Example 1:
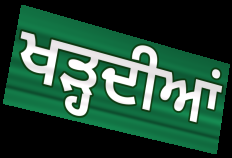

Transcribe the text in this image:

ਖੜ੍ਹਦੀਆਂ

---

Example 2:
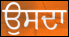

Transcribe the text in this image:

ਉਸਦਾ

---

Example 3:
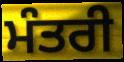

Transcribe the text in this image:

ਮੰਤਰੀ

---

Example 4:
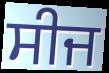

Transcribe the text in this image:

ਸੀਜ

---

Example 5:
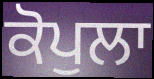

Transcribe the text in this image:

ਕੋਪੁਲਾ